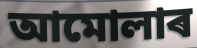
আমোলাৰ